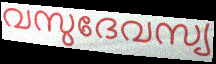
വസുദേവസ്യ